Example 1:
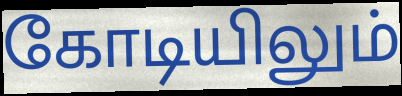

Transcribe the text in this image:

கோடியிலும்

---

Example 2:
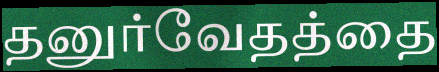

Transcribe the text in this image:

தனுர்வேதத்தை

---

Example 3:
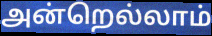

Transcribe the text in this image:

அன்றெல்லாம்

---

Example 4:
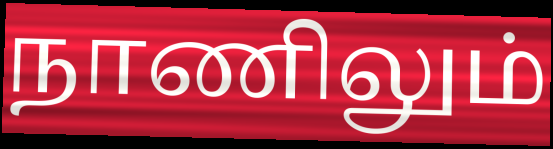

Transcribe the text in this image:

நாணிலும்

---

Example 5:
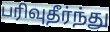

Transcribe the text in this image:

பரிவுதீர்ந்து